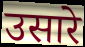
उसारे